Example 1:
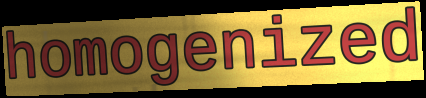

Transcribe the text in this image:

homogenized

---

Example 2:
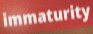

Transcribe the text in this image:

immaturity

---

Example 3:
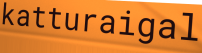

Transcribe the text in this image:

katturaigal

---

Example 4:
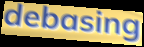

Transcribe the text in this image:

debasing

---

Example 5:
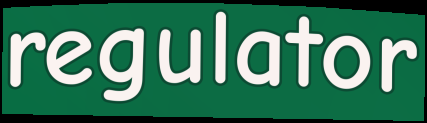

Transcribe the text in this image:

regulator